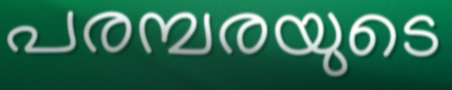
പരമ്പരയുടെ